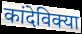
कांदेविक्या